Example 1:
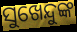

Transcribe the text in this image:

ସୁଖେନ୍ଦୁଙ୍କ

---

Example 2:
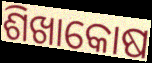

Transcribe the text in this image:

ଶିଖାକୋଷ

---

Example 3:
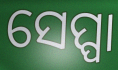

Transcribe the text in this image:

ସେପ୍ପା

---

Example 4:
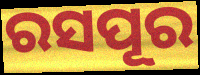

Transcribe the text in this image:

ରସପୂର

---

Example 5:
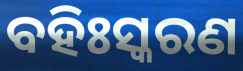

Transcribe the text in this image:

ବହିଃସ୍କରଣ